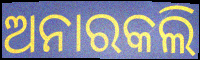
ଅନାରକଲି